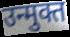
उन्मुक्त